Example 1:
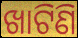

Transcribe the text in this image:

ଖାଟିଣି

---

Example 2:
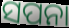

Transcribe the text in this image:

ସପନା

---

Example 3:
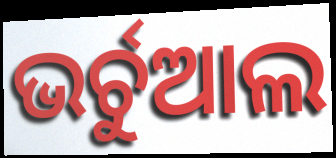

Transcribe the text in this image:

ଭର୍ଚୁଆଲ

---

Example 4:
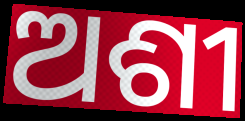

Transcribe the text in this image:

ଅଶୀ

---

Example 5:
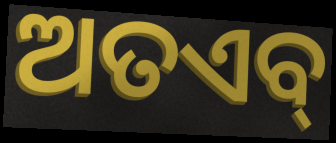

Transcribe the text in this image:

ଅତଏବ୍